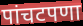
पांचटपणा